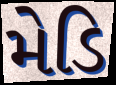
મેડિ